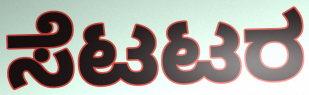
ಸೆಟಟರ